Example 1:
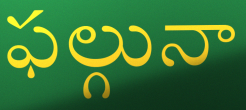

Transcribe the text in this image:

ఫల్గునా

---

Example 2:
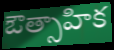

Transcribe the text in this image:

ఔత్సాహిక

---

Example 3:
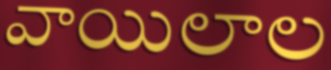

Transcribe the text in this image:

వాయిలాల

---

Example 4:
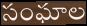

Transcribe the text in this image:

సంఘాల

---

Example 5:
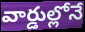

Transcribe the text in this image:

వార్డుల్లోనే